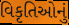
વિકૃતિઓનું